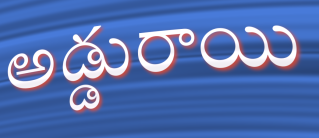
అడ్డురాయి